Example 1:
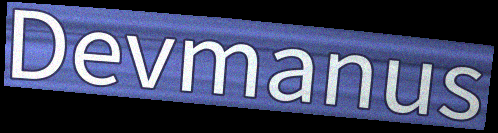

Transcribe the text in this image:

Devmanus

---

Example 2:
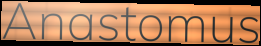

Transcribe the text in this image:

Anastomus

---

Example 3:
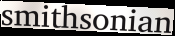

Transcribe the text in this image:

smithsonian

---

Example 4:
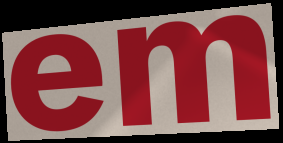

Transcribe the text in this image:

em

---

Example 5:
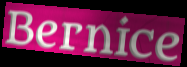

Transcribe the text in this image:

Bernice